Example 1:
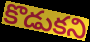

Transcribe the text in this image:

కొడుకని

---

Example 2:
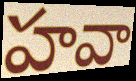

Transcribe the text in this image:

హవా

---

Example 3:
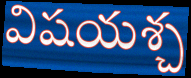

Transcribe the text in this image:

విషయశ్చ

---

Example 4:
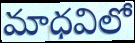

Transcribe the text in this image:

మాధవిలో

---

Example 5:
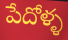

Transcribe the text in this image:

పేదోళ్ళ